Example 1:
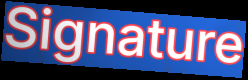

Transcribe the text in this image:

Signature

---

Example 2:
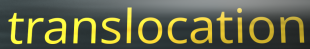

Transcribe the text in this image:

translocation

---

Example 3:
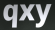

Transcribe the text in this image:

qxy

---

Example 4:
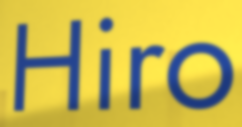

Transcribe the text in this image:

Hiro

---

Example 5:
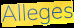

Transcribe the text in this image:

Alleges